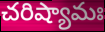
చరిష్యామః